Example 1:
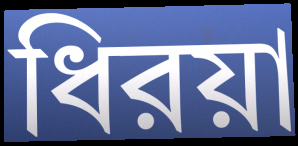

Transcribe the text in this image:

ধিরয়া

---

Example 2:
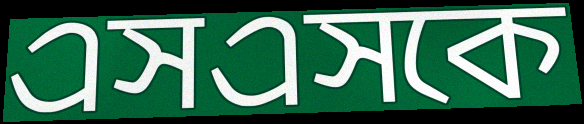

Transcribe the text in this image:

এসএসকে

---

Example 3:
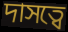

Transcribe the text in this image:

দাসত্বে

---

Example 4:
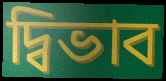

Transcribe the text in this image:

দ্বিভাব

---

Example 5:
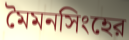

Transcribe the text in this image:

মৈমনসিংহের